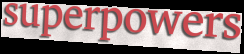
superpowers